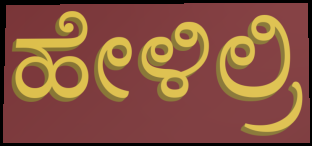
ಹೇಳಿಲ್ರಿ